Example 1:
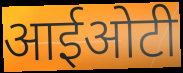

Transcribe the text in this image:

आईओटी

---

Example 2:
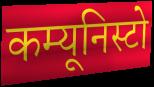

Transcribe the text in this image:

कम्यूनिस्टो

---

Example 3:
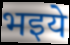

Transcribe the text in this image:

भइये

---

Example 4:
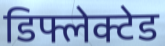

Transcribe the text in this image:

डिफ्लेक्टेड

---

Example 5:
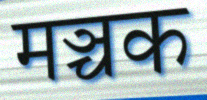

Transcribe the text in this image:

मञ्चक